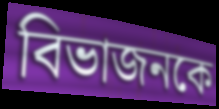
বিভাজনকে